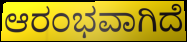
ಆರಂಭವಾಗಿದೆ